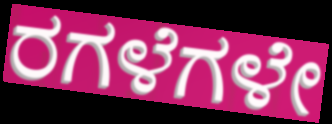
ರಗಳೆಗಳೇ